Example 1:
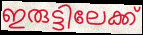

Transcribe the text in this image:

ഇരുട്ടിലേക്ക്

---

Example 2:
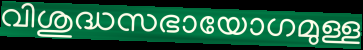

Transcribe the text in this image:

വിശുദ്ധസഭായോഗമുള്ള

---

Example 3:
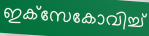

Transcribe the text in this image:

ഇക്‌സേകോവിച്ച്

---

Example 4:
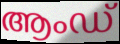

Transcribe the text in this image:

ആംഡ്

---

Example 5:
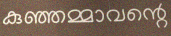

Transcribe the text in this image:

കുഞ്ഞമ്മാവന്റെ